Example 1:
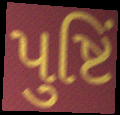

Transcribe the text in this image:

પુષ્ટિં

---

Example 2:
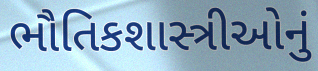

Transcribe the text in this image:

ભૌતિકશાસ્ત્રીઓનું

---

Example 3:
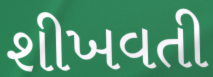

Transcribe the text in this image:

શીખવતી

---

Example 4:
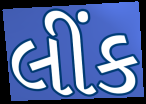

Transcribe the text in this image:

લીંક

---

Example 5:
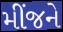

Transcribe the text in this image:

મીંજને